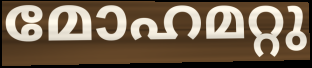
മോഹമറ്റു